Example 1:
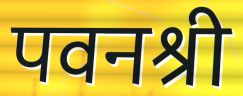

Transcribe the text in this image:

पवनश्री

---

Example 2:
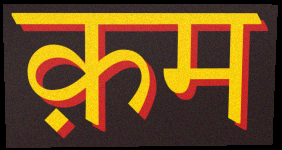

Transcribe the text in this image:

क़म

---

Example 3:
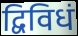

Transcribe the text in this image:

द्विविधं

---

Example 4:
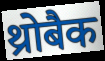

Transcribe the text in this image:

थ्रोबैक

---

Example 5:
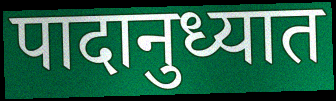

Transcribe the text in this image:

पादानुध्यात